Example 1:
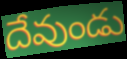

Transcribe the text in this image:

దేవుండు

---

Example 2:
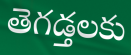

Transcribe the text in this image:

తెగడ్తలకు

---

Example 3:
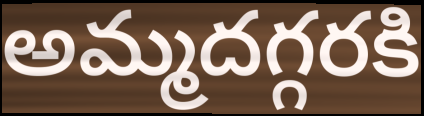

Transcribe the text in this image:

అమ్మదగ్గరకి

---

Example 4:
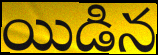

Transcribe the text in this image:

యిడిన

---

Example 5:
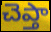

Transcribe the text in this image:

చెప్తా